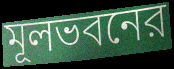
মূলভবনের